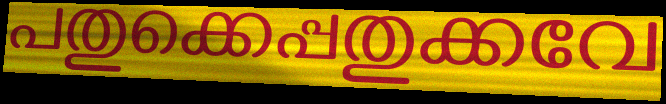
പതുക്കെപ്പതുക്കവേ